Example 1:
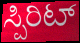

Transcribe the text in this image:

ಸ್ಪಿರಿಟ್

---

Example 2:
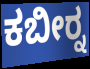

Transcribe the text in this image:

ಕಬೀರ್‍ನ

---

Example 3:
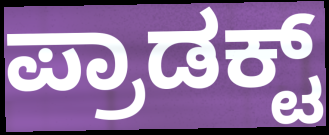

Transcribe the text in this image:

ಪ್ರಾಡಕ್ಟ್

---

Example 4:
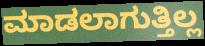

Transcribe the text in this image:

ಮಾಡಲಾಗುತ್ತಿಲ್ಲ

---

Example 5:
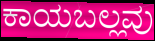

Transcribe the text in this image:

ಕಾಯಬಲ್ಲವು